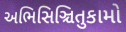
અભિસિઞ્ચિતુકામો